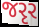
જરૃર